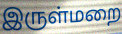
இருள்மறை